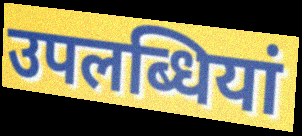
उपलब्धियां